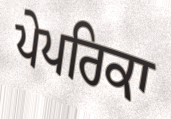
ਪੇਪਰਿਕਾ